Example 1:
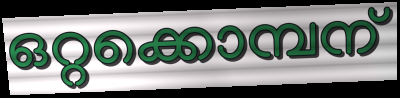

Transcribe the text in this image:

ഒറ്റക്കൊമ്പന്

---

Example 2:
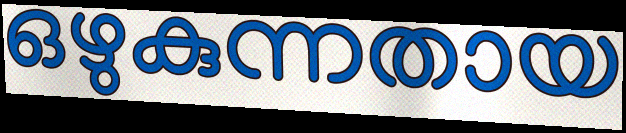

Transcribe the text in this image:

ഒഴുകുന്നതായ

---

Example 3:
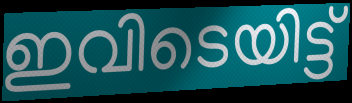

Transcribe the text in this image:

ഇവിടെയിട്ട്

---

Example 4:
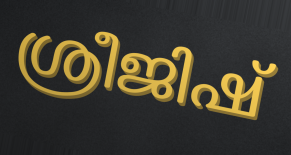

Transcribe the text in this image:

ശ്രീജിഷ്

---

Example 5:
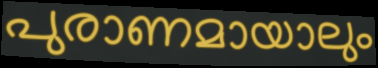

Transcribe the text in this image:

പുരാണമായാലും